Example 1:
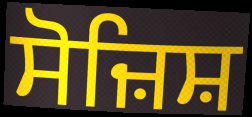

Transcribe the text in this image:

ਸੋਜ਼ਿਸ਼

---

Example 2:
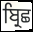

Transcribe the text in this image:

ਬ੍ਰਿਛ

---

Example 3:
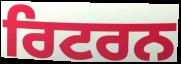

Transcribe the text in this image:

ਰਿਟਰਨ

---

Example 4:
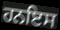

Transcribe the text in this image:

ਹਨਇਸ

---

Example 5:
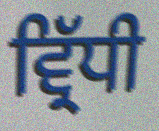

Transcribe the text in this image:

ਵ੍ਰਿੱਧੀ